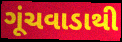
ગૂંચવાડાથી